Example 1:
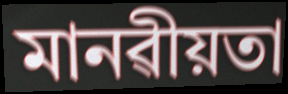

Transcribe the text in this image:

মানৱীয়তা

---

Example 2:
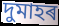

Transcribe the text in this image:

দুমাহৰ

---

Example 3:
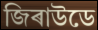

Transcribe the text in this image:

জিৰাউডে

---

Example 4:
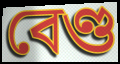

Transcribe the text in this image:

বেণ্ড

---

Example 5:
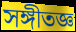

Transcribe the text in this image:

সঙ্গীতজ্ঞ